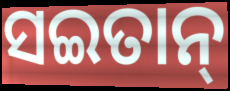
ସଇତାନ୍